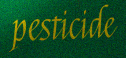
pesticide